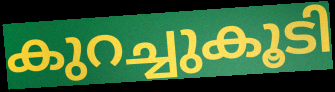
കുറച്ചുകൂടി